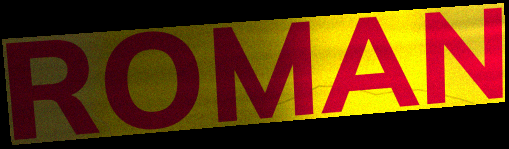
ROMAN